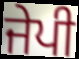
ਜੇਪੀ